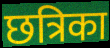
छत्रिका